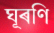
ঘূৰণি